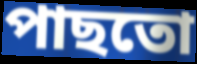
পাছতো